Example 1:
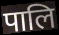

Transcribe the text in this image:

पालि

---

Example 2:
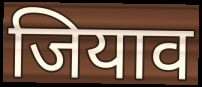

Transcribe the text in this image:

जियाव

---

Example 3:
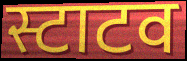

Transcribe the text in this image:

स्टाटव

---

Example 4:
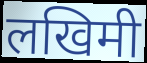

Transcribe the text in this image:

लखिमी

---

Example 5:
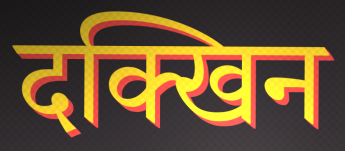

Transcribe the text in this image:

दक्खिन